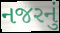
નજરનું